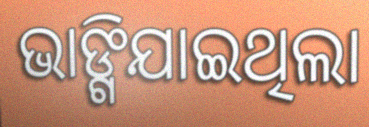
ଭାଙ୍ଗିଯାଇଥିଲା